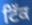
ਟਿੱਕ